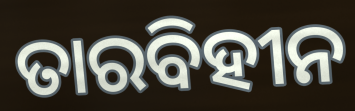
ତାରବିହୀନ